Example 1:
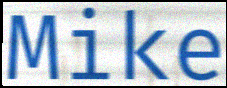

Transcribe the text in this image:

Mike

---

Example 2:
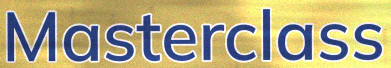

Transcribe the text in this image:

Masterclass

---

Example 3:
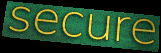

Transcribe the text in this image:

secure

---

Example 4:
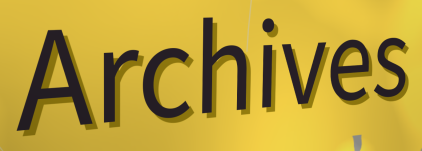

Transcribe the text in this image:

Archives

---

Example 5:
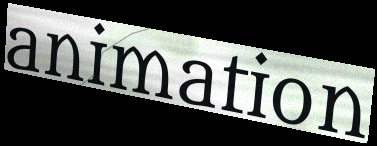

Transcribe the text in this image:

animation